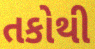
તકોથી